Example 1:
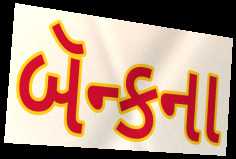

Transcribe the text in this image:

બૅન્કના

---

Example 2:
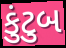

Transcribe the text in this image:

કુંટુબ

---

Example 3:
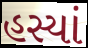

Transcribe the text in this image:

હસ્યાં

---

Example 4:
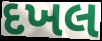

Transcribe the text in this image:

દખલ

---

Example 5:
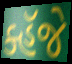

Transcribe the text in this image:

ક્હૅજે